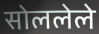
सोललेले